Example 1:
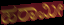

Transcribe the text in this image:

ಹರಾಮೀ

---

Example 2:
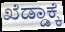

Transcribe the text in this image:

ಖೆಡ್ಡಾಕ್ಕೆ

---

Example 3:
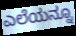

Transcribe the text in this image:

ಎಲೆಯನ್ನೂ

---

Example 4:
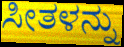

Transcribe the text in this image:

ಸೀತಳನ್ನು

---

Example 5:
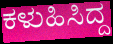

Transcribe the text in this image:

ಕಳುಹಿಸಿದ್ದ